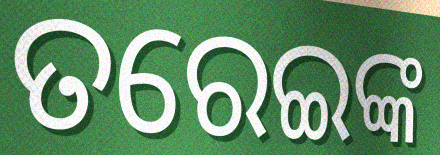
ତରେଇଙ୍କ